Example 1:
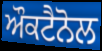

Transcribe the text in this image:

ਔਕਟੈਨੋਲ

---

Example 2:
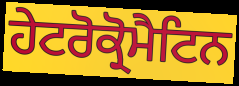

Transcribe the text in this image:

ਹੇਟਰੋਕ੍ਰੋਮੈਟਿਨ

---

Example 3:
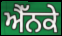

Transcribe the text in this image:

ਐੱਨਕੇ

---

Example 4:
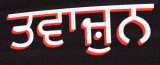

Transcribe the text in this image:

ਤਵਾਜ਼ੁਨ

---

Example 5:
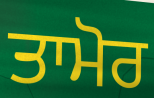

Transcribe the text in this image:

ਤਾਮੋਰ